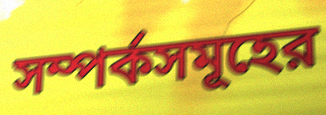
সম্পর্কসমূহের